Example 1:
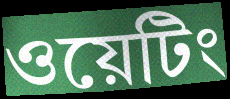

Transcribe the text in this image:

ওয়েটিং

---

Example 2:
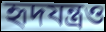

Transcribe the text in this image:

হৃদযন্ত্রও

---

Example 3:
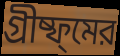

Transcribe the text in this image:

গ্রীষ্ফ্মের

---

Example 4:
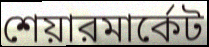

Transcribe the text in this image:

শেয়ারমার্কেট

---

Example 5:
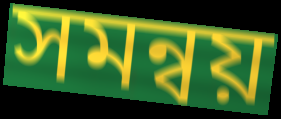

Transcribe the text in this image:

সমন্বয়